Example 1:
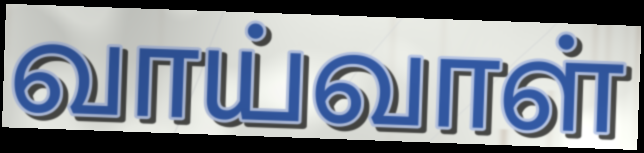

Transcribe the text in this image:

வாய்வாள்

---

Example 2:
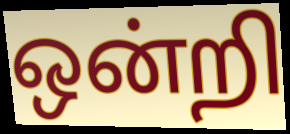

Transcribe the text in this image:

ஒன்றி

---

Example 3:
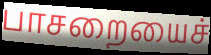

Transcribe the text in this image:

பாசறையைச்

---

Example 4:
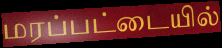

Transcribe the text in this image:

மரப்பட்டையில்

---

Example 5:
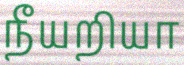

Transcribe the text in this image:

நீயறியா